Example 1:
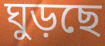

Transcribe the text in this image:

ঘুড়ছে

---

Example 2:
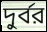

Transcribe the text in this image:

দুর্বর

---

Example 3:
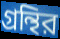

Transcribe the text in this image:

গ্রন্থির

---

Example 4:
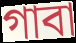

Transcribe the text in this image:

গাবা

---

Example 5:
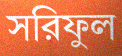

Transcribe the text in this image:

সরিফুল